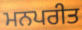
ਮਨਪਰੀਤ